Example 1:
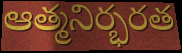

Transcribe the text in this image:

ఆత్మనిర్భరత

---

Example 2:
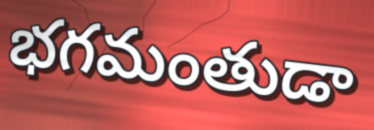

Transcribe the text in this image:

భగమంతుడా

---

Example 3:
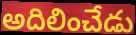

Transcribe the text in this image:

అదిలించేడు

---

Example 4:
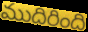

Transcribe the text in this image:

ముదిరింది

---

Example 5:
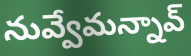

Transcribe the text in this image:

నువ్వేమన్నావ్